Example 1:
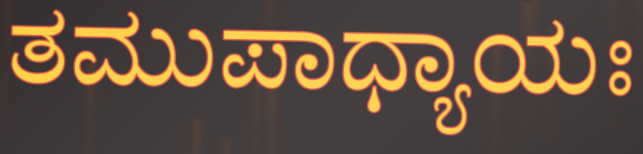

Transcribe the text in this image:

ತಮುಪಾಧ್ಯಾಯಃ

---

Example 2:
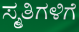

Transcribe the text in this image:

ಸ್ಮೃತಿಗಳಿಗೆ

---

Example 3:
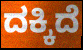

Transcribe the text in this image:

ದಕ್ಕಿದೆ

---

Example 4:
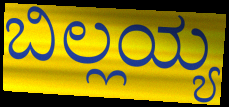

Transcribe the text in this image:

ಬಿಲ್ಲಯ್ಯ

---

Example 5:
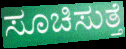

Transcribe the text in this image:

ಸೂಚಿಸುತ್ತೆ